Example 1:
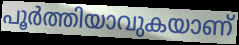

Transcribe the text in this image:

പൂർത്തിയാവുകയാണ്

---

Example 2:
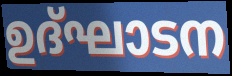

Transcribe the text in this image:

ഉദ്ഘാടന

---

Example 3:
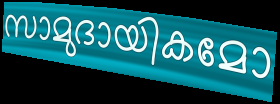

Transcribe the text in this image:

സാമുദായികമോ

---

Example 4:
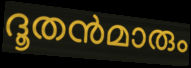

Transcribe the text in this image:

ദൂതൻമാരും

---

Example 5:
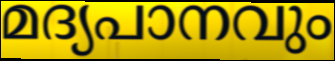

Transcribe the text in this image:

മദ്യപാനവും